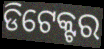
ଡିଟେକ୍ଟର